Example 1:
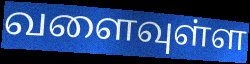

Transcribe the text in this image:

வளைவுள்ள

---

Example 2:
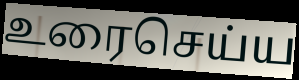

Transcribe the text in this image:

உரைசெய்ய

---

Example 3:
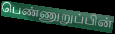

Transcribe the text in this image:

பெண்ணுறுப்பின்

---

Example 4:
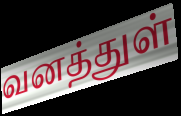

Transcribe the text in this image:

வனத்துள்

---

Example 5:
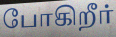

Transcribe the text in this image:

போகிறீர்